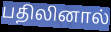
பதிலினால்